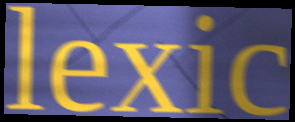
lexic